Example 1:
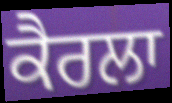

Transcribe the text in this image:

ਕੈਰਲਾ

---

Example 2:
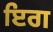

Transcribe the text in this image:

ਇਗ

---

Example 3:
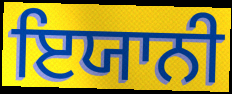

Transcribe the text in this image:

ਇਯਾਨੀ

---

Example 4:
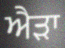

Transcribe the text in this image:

ਐੜਾ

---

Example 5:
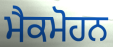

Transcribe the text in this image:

ਮੈਕਮੋਹਨ